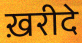
ख़रीदे